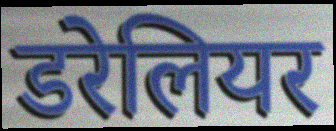
डरेलियर